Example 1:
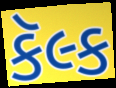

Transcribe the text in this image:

કૅલ્ક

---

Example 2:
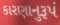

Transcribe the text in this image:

કારણાનુરૂપં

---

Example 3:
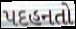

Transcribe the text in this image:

પદહનતો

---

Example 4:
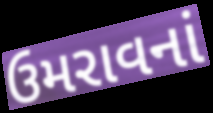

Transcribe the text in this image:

ઉમરાવનાં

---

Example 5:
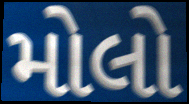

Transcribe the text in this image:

મોલો